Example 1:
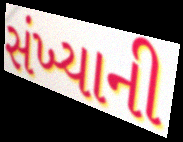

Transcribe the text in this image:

સંખ્યાની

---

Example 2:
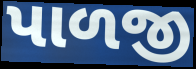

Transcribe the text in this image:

પાળજી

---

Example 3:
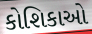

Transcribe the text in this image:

કોશિકાઓ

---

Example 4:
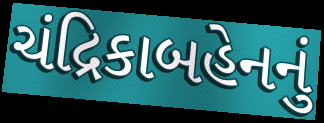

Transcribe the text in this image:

ચંદ્રિકાબહેનનું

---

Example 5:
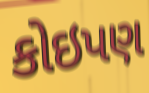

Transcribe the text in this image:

કોઇપણ